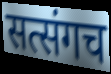
सत्संगच